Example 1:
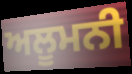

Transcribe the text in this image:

ਅਲੂਮਨੀ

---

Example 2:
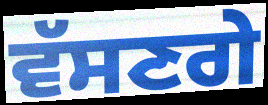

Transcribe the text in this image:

ਵੱਸਣਗੇ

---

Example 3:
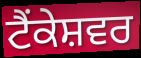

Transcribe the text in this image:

ਟੈਂਕੇਸ਼ਵਰ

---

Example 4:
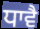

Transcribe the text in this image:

ਧਾਵੈ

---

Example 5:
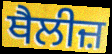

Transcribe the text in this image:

ਥੈਲੀਜ਼